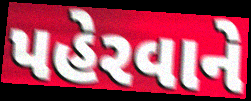
પહેરવાને